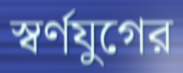
স্বর্ণযুগের